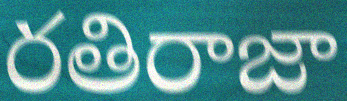
రతిరాజా